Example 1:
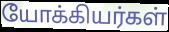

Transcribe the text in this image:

யோக்கியர்கள்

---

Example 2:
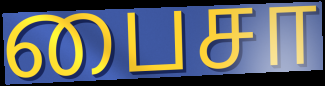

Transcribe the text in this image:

பைசா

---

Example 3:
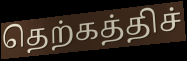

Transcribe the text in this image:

தெற்கத்திச்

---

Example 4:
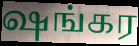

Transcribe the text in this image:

ஷங்கர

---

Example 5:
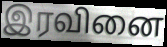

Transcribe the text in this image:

இரவினை